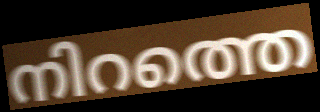
നിറത്തെ